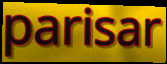
parisar